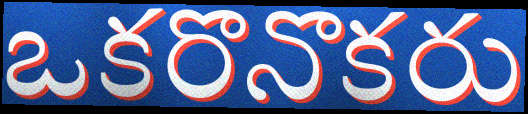
ఒకరొనొకరు